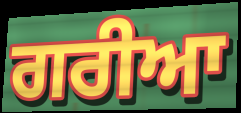
ਗਰੀਆ